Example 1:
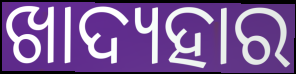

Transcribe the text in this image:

ଖାଦ୍ୟହାର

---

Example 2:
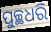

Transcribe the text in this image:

ପୁଚ୍ଛଧରି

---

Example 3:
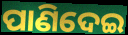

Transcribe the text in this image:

ପାଣିଦେଇ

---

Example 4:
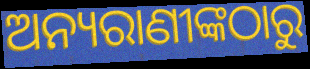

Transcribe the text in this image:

ଅନ୍ୟରାଣୀଙ୍କଠାରୁ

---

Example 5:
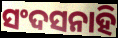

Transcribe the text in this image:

ସଂଦସନାହି